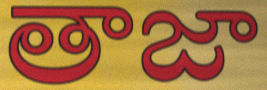
తాజా